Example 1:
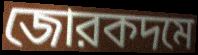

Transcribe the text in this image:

জোরকদমে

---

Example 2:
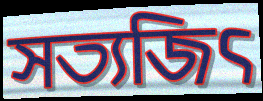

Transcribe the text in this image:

সত্যজিৎ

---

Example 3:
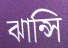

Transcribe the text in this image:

ঝান্সি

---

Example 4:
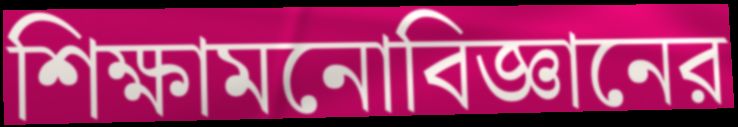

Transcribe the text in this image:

শিক্ষামনোবিজ্ঞানের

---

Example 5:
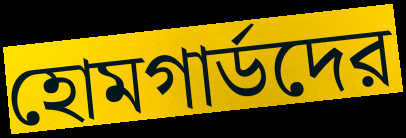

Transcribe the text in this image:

হোমগার্ডদের